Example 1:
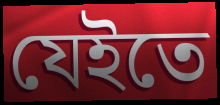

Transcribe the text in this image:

যেইতে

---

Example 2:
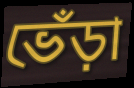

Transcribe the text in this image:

ভেঁড়া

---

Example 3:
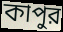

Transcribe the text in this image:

কাপুর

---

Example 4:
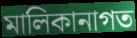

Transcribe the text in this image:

মালিকানাগত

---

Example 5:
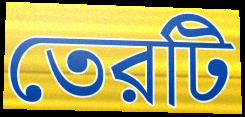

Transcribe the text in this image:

তেরটি